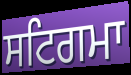
ਸਟਿਗਮਾ